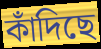
কাঁদিছে